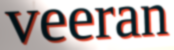
veeran